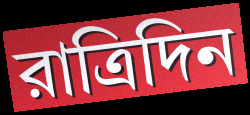
রাত্রিদিন